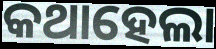
କଥାହେଲା